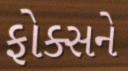
ફોક્સને